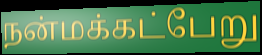
நன்மக்கட்பேறு